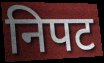
निपट